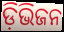
ଡ଼ିଭିଜନ